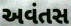
અવંતસ